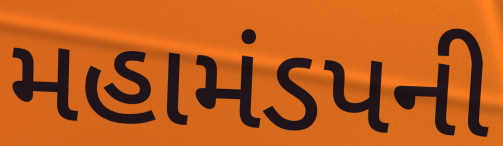
મહામંડપની